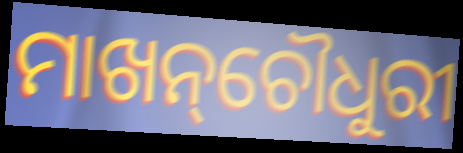
ମାଖନ୍‌ଚୌଧୁରୀ